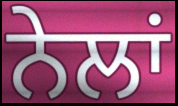
ਨੇਲਾਂ